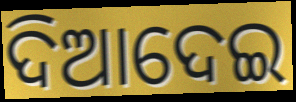
ଦିଆଦେଇ